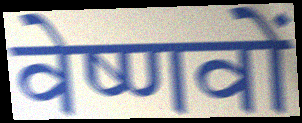
वेष्णवों